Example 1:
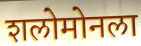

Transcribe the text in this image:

शलोमोनला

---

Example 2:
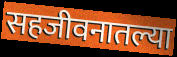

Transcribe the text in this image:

सहजीवनातल्या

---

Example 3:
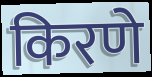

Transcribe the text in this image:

किरणे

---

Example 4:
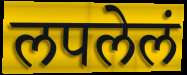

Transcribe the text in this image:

लपलेलं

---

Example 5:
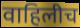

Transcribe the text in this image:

वाहिलीच